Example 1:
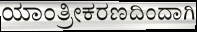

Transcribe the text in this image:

ಯಾಂತ್ರೀಕರಣದಿಂದಾಗಿ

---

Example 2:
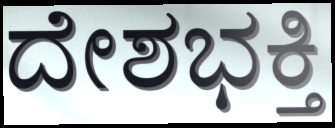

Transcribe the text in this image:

ದೇಶಭಕ್ತಿ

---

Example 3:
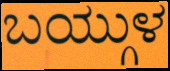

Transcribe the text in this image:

ಬಯ್ಗುಳ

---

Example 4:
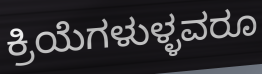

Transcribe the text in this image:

ಕ್ರಿಯೆಗಳುಳ್ಳವರೂ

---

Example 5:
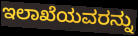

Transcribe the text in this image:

ಇಲಾಖೆಯವರನ್ನು